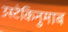
उस्टेकिनुमाब